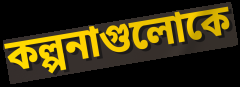
কল্পনাগুলোকে